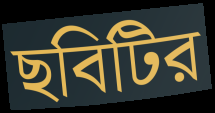
ছবিটির